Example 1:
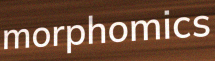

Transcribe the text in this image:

morphomics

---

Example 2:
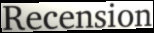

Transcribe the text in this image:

Recension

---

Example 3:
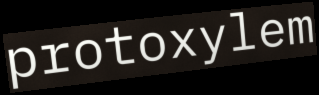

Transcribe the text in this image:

protoxylem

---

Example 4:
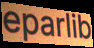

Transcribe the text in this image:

eparlib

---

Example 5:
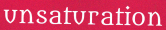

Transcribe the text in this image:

unsaturation